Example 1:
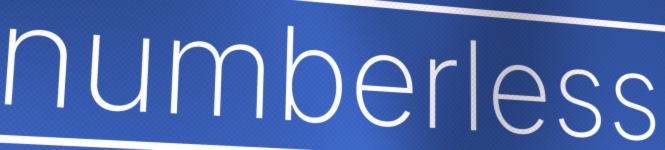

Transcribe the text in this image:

numberless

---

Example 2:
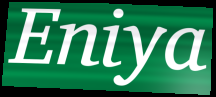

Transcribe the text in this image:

Eniya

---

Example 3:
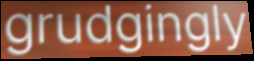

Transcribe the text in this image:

grudgingly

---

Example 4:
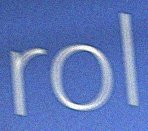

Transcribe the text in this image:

rol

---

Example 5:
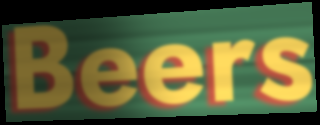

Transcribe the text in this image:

Beers